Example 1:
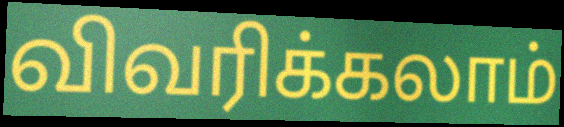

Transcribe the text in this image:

விவரிக்கலாம்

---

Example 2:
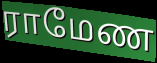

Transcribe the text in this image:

ராமேண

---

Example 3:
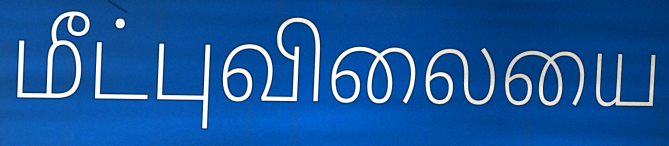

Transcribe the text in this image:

மீட்புவிலையை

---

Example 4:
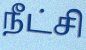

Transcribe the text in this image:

நீட்சி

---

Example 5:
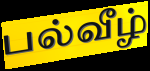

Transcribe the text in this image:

பல்வீழ்